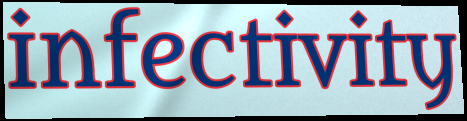
infectivity